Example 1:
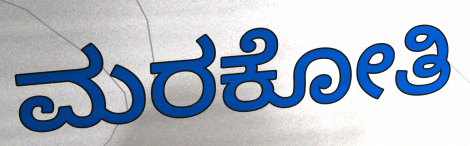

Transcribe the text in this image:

ಮರಕೋತಿ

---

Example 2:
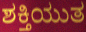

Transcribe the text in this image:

ಶಕ್ತಿಯುತ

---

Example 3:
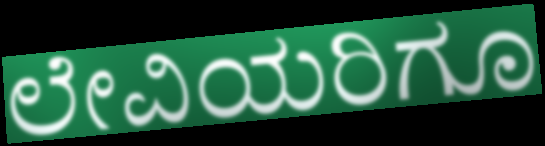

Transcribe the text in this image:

ಲೇವಿಯರಿಗೂ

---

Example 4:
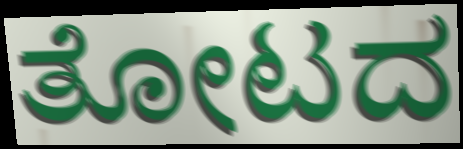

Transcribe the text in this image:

ತೋಟದ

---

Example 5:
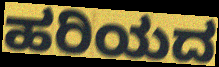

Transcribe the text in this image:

ಹರಿಯದ